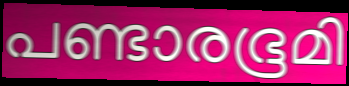
പണ്ടാരഭൂമി